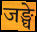
जङ्घे